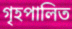
গৃহপালিত